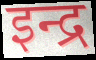
इन्द्र